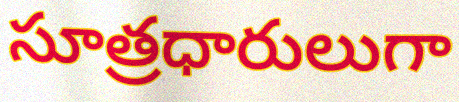
సూత్రధారులుగా